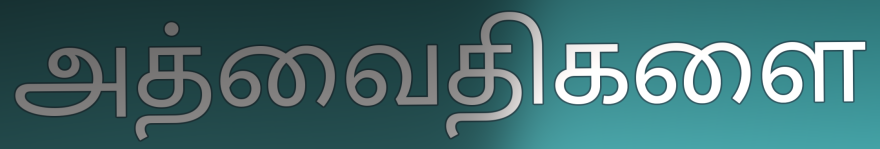
அத்வைதிகளை